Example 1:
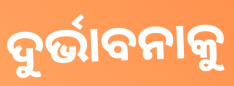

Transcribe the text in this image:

ଦୁର୍ଭାବନାକୁ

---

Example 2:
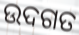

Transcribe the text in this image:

ଉଦଗତ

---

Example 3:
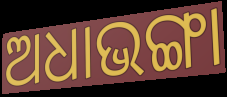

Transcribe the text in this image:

ଅଧାଭଙ୍ଗା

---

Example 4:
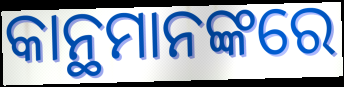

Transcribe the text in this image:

କାନ୍ଥମାନଙ୍କରେ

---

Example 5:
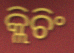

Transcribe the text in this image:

କ୍ଲିଚିଂ